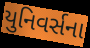
યુનિવર્સના